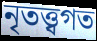
নৃতত্ত্বগত